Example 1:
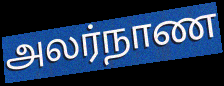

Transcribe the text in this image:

அலர்நாண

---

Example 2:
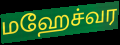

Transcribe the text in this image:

மஹேச்வர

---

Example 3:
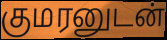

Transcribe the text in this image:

குமரனுடன்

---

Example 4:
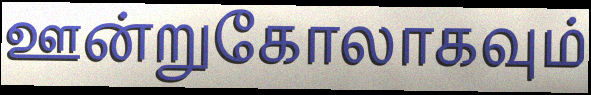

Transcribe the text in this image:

ஊன்றுகோலாகவும்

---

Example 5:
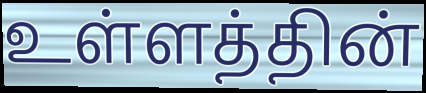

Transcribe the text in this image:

உள்ளத்தின்